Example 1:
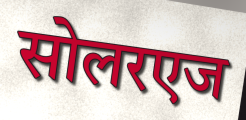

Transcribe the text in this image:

सोलरएज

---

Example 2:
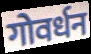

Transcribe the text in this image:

गोवर्धन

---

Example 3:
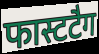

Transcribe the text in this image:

फास्टटैग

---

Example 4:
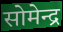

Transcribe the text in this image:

सोमेन्द्र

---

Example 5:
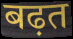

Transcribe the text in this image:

बढ़त